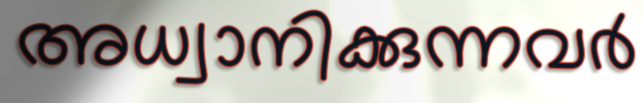
അധ്വാനിക്കുന്നവർ